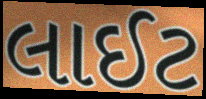
લાઈટ